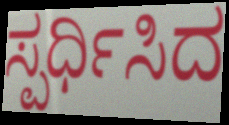
ಸ್ಪರ್ಧಿಸಿದ